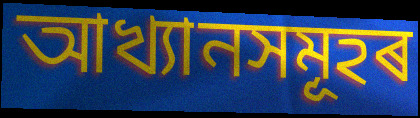
আখ্যানসমূহৰ